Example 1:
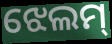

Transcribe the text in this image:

ଝେଲମ୍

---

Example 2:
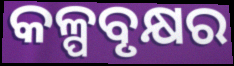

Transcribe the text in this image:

କଳ୍ପବୃକ୍ଷର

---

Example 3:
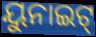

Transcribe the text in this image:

ୟୁନାଇଟ୍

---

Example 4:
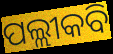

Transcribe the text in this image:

ପଲ୍ଲୀକବି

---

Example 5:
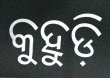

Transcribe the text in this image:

କୁହୁଡ଼ି